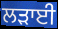
ਲੜਾਈ